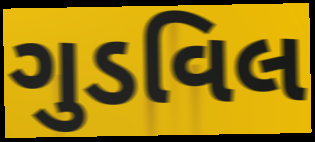
ગુડવિલ